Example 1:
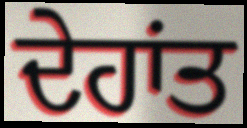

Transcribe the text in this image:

ਦੇਹਾਂਤ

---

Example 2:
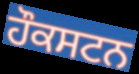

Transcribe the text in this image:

ਹੌਕਸਟਨ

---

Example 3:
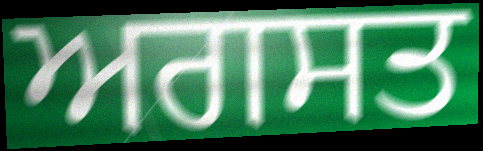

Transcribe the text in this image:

ਅਗਸਤ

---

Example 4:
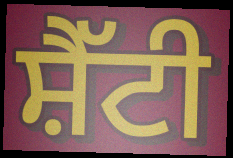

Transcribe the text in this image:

ਸ਼ੈੱਟੀ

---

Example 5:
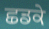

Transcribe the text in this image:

ਛਡਕੇ